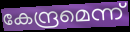
കേന്ദ്രമെന്ന്